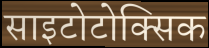
साइटोटोक्सिक